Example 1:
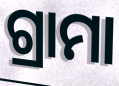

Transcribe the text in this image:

ଗ୍ରାମା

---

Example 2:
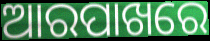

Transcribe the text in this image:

ଆରପାଖରେ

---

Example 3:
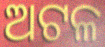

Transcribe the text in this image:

ଅଟଳ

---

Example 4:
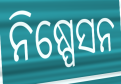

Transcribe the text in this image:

ନିଷ୍ପେସନ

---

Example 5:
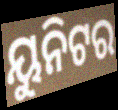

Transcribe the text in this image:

ୟୁନିଟର